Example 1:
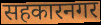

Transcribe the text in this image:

सहकारनगर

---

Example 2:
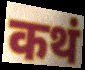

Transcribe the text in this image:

कथं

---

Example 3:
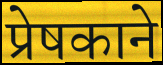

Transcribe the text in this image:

प्रेषकाने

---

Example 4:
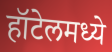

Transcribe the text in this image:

हॉटेलमध्ये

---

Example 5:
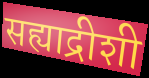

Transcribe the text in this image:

सह्याद्रीशी